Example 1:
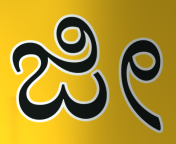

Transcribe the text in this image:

ಜೀ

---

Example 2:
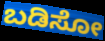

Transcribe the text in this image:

ಬಡಿಸೋ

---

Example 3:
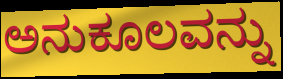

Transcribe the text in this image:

ಅನುಕೂಲವನ್ನು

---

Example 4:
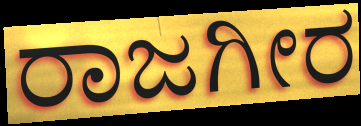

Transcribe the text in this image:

ರಾಜಗೀರ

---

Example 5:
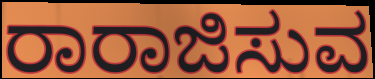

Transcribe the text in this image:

ರಾರಾಜಿಸುವ